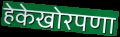
हेकेखोरपणा